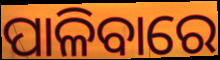
ପାଳିବାରେ